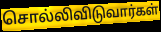
சொல்லிவிடுவார்கள்